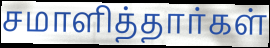
சமாளித்தார்கள்